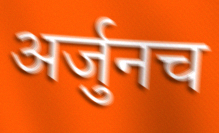
अर्जुनच